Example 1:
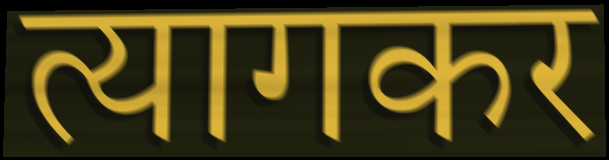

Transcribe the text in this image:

त्यागकर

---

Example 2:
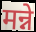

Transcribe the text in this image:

मन्ने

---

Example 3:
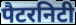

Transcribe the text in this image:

पैटरनिटी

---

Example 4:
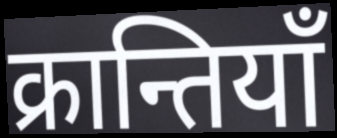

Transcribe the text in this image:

क्रान्तियाँ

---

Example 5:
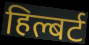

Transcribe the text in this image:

हिल्बर्ट